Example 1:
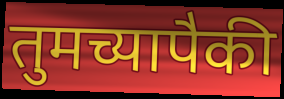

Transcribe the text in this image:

तुमच्यापैकी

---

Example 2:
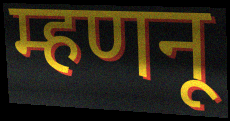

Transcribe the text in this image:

म्हणनू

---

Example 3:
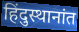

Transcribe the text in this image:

हिंदुस्थानांत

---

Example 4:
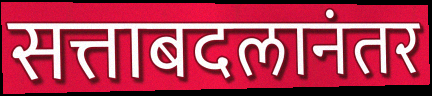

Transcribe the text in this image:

सत्ताबदलानंतर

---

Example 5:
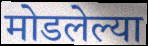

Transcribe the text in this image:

मोडलेल्या